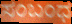
ಸಂಬಂಧ